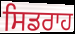
ਸਿਡਰਾਹ